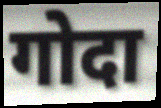
गोदा